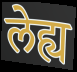
लेह्य